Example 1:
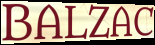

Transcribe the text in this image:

BALZAC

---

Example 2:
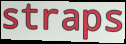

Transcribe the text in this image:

straps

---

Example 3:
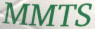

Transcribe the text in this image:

MMTS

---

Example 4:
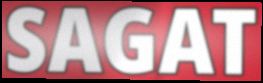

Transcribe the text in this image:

SAGAT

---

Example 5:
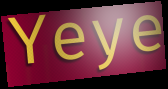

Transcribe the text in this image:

Yeye